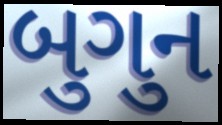
બુગુન